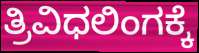
ತ್ರಿವಿಧಲಿಂಗಕ್ಕೆ